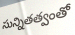
సున్నితత్వంతో